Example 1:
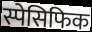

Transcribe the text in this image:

स्पेसिफिक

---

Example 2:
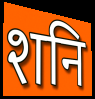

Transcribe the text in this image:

शनि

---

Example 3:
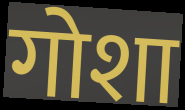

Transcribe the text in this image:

गोशा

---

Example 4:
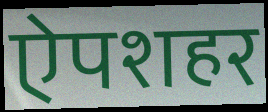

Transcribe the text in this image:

ऐपशहर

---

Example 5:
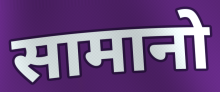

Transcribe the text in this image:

सामानो